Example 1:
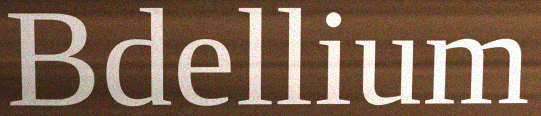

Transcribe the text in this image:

Bdellium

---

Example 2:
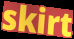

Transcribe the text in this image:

skirt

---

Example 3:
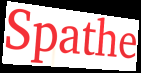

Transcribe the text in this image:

Spathe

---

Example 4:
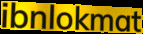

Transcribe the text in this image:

ibnlokmat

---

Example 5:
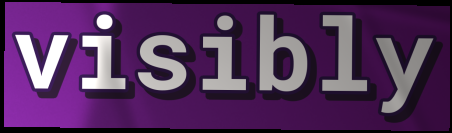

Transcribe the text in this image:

visibly